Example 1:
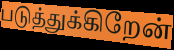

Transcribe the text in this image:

படுத்துக்கிறேன்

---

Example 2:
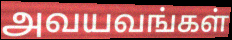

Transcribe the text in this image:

அவயவங்கள்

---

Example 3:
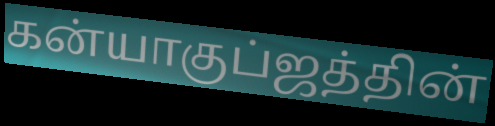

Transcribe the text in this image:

கன்யாகுப்ஜத்தின்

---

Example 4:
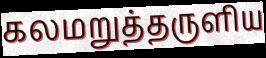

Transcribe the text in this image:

கலமறுத்தருளிய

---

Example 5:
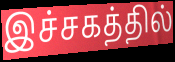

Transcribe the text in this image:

இச்சகத்தில்